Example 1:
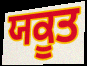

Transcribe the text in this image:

ਯਕੂਤ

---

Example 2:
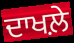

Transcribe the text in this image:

ਦਾਖਲ਼ੇ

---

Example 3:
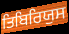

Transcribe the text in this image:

ਤਿਬਿਰਿਯੁਸ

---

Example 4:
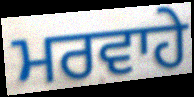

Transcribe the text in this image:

ਮਰਵਾਹੇ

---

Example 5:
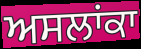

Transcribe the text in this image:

ਅਸਲਾਂਕਾ